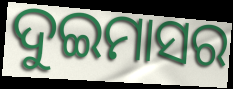
ଦୁଇମାସର